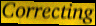
Correcting